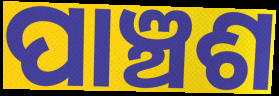
ପାଞ୍ଚଶ